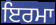
ਇਰਮਾ